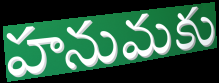
హనుమకు